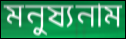
মনুষ্যনাম